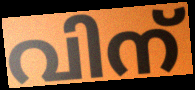
വിന്